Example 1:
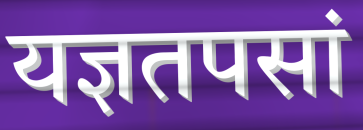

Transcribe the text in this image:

यज्ञतपसां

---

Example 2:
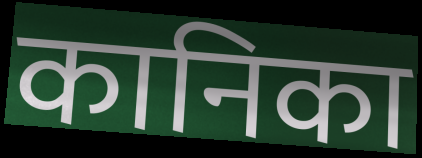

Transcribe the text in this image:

कानिका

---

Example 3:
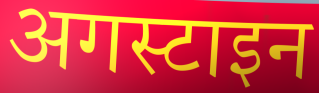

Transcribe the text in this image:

अगस्टाइन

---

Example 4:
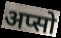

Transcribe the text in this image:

अप्सो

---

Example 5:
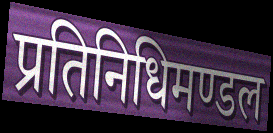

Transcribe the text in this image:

प्रतिनिधिमण्डल